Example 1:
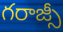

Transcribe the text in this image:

గరాజ్సీ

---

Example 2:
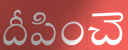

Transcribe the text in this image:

దీపించె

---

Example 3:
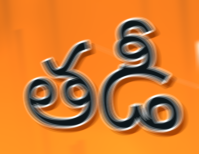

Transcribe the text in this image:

తడీ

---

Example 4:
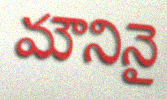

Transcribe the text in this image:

మౌనినై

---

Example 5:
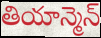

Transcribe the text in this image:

తియాన్మెన్